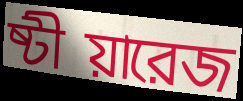
ষ্টীয়ারেজ